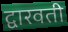
द्वारवती